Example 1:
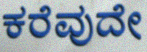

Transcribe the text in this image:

ಕರೆವುದೇ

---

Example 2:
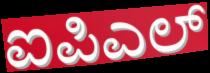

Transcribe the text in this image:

ಐಪಿಎಲ್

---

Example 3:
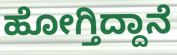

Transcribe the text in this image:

ಹೋಗ್ತಿದ್ದಾನೆ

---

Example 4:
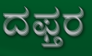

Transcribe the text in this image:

ದಫ್ತರ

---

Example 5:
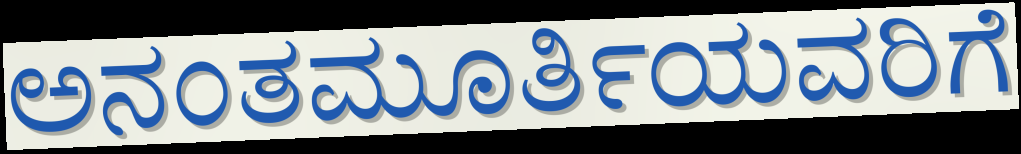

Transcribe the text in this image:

ಅನಂತಮೂರ್ತಿಯವರಿಗೆ